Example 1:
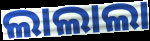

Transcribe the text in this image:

ଲାଲାଲା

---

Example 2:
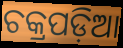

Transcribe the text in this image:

ଚକ୍ରପଡ଼ିଆ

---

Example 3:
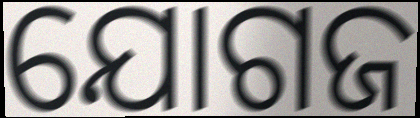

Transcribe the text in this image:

ଯୋଗଜ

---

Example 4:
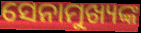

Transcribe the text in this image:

ସେନାମୁଖ୍ୟଙ୍କ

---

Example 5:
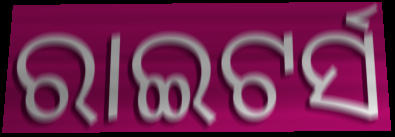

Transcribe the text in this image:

ରାଇଟର୍ସ